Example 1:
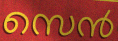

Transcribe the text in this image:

സെൻ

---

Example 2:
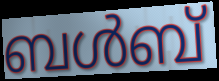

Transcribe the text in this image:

ബൾബ്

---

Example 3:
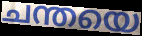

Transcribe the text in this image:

ചന്തയെ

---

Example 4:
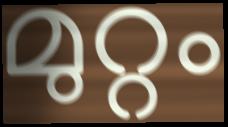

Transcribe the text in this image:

മുറ്റം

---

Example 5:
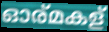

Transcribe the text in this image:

ഓര്മകള്